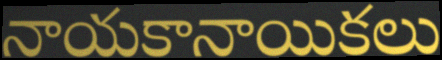
నాయకానాయికలు